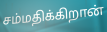
சம்மதிக்கிறான்